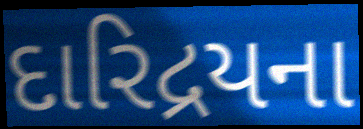
દારિદ્રયના